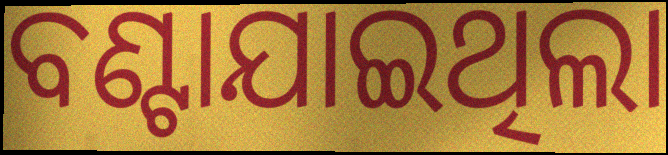
ବଣ୍ଟାଯାଇଥିଲା